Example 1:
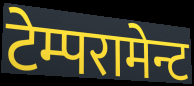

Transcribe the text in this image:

टेम्परामेन्ट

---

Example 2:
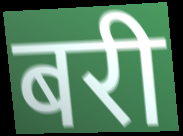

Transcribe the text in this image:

बरी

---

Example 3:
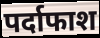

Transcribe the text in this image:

पर्दाफाश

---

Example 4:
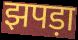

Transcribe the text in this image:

झपड़ा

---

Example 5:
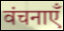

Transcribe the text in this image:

वंचनाएँ